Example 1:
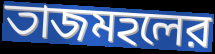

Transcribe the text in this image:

তাজমহলের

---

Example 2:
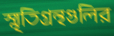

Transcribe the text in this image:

স্মৃতিগ্রন্থগুলির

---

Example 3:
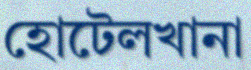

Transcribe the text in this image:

হোটেলখানা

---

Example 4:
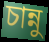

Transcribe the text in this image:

চান্নু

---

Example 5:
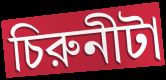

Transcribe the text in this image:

চিরুনীটা